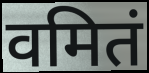
वमितं